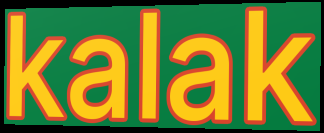
kalak